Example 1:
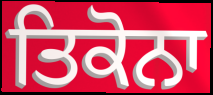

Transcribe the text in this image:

ਤਿਕੋਨਾ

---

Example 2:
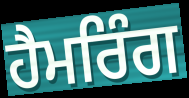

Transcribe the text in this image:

ਹੈਮਰਿੰਗ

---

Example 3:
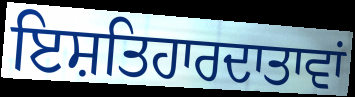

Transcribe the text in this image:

ਇਸ਼ਤਿਹਾਰਦਾਤਾਵਾਂ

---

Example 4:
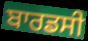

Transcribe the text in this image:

ਬਾਰਡਸੀ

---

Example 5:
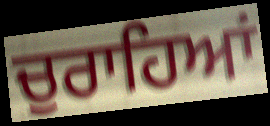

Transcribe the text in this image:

ਚੁਰਾਹਿਆਂ